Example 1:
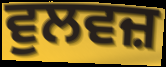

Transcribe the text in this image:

ਵੁਲਵਜ਼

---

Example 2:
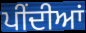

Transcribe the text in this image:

ਪੀਂਦੀਆਂ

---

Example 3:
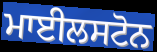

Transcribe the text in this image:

ਮਾਈਲਸਟੋਨ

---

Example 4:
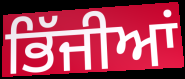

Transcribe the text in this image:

ਭਿੱਜੀਆਂ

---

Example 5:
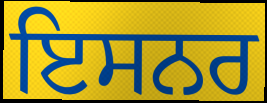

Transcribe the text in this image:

ਇਸਨਰ